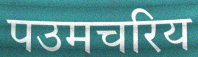
पउमचरिय